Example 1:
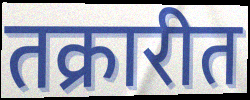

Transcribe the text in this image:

तक्रारीत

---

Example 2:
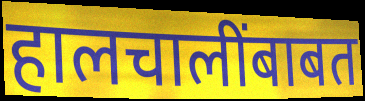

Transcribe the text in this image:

हालचालींबाबत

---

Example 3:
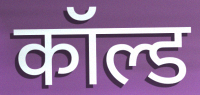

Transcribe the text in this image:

कॉल्ड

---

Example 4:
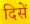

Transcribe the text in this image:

दिसें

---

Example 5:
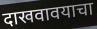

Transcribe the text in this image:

दाखवावयाचा